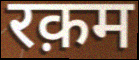
रक़म